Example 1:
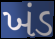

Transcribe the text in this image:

ખંડ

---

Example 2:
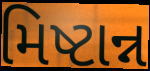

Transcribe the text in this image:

મિષ્ટાન્ન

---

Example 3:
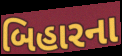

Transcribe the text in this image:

બિહારના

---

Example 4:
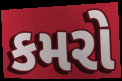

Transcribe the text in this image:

કમરો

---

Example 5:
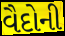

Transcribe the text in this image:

વૈદોની